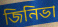
জিনিভা